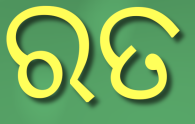
ରତ